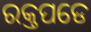
ରକ୍ତପଡେ